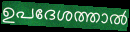
ഉപദേശത്താൽ